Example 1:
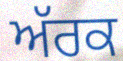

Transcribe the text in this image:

ਅੱਰਕ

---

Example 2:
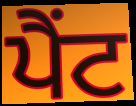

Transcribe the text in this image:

ਪੈਂਟ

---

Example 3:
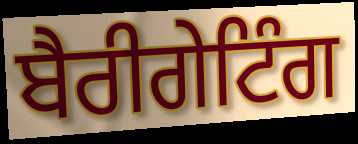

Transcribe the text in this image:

ਬੈਰੀਗੇਟਿੰਗ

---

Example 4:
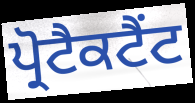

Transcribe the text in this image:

ਪ੍ਰੋਟੈਕਟੈਂਟ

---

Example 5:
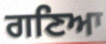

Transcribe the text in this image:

ਗਣਿਆ